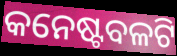
କନେଷ୍ଟବଳଟି